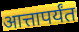
आत्तापर्यंत